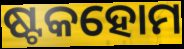
ଷ୍ଟକହୋମ